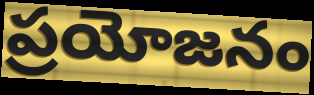
ప్రయోజనం